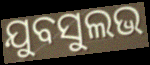
ଯୁବସୁଲଭ